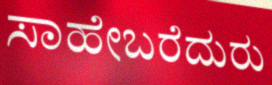
ಸಾಹೇಬರೆದುರು